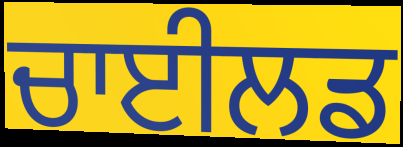
ਚਾਈਲਡ